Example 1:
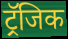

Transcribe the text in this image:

ट्रॅजिक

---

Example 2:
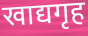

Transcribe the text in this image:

खाद्यगृह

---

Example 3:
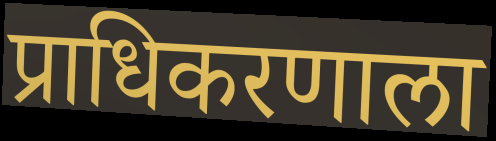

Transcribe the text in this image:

प्राधिकरणाला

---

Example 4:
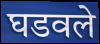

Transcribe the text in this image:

घडवले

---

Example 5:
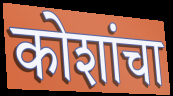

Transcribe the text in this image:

कोशांचा